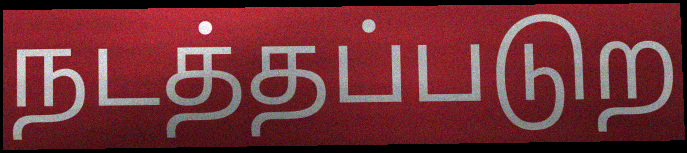
நடத்தப்படுற